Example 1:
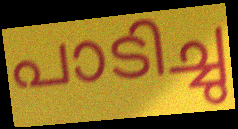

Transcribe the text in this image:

പാടിച്ചു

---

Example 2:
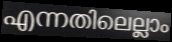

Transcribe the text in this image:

എന്നതിലെല്ലാം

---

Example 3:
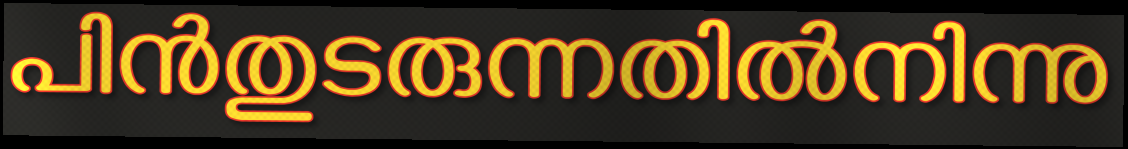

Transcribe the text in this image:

പിൻതുടരുന്നതിൽനിന്നു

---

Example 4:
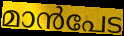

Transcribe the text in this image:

മാൻപേട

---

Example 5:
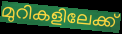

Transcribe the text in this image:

മുറികളിലേക്ക്